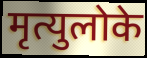
मृत्युलोके